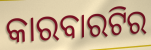
କାରବାରଟିର